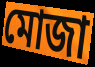
মোজা